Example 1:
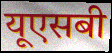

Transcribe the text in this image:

यूएसबी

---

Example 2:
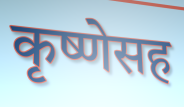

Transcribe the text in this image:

कृष्णेसह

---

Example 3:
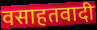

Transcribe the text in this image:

वसाहतवादी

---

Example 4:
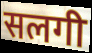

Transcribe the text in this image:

सलगी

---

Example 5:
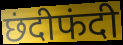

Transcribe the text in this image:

छंदीफंदी